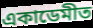
একাডেমীত